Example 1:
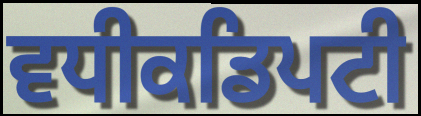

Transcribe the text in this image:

ਵਧੀਕਡਿਪਟੀ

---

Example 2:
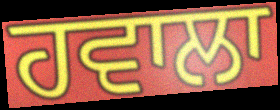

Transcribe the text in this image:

ਹਵਾਲਾ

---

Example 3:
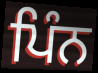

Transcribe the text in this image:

ਪਿੰਨ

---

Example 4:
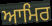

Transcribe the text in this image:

ਆਮਿਰ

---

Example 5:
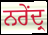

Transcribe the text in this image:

ਨਰੇਂਦ੍ਰ